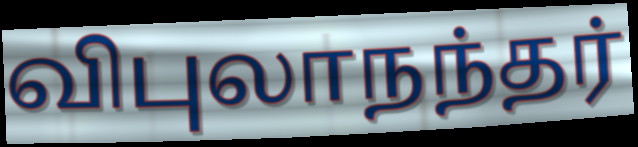
விபுலாநந்தர்